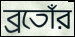
ব্রতোঁর